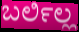
ಬರ್ಲಿಲ್ಲ